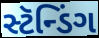
સ્ટૅન્ડિંગ